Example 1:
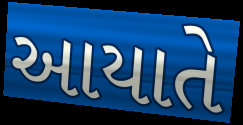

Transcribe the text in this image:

આયાતે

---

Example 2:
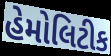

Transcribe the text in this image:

હેમોલિટીક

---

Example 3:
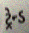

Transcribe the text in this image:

ટ્રેન્ડ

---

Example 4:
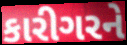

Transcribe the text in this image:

કારીગરને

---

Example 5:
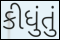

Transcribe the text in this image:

કીધુંતું